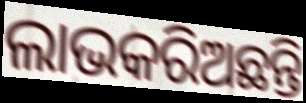
ଲାଭକରିଅଛନ୍ତି